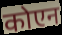
कोएन